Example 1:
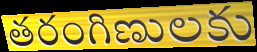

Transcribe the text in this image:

తరంగిణులకు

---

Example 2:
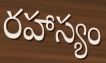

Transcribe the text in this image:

రహాస్యం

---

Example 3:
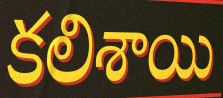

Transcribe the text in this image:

కలిశాయి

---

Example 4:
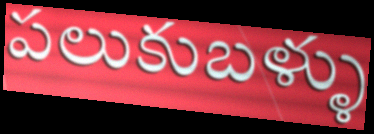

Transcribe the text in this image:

పలుకుబళ్ళు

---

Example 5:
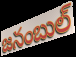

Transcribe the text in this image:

జనంబుల్